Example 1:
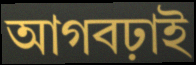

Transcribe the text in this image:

আগবঢ়াই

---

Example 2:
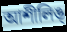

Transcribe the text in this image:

আশীলিঙ্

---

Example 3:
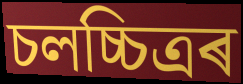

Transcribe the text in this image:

চলচ্চিত্ৰৰ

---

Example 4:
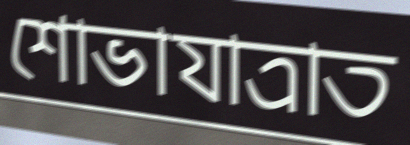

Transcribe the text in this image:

শোভাযাত্ৰাত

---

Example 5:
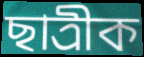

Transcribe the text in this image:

ছাত্ৰীক